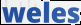
weles